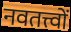
नवतत्त्वों